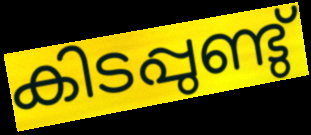
കിടപ്പുണ്ടു്